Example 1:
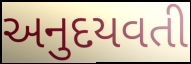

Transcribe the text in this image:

અનુદયવતી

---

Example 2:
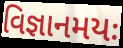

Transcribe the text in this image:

વિજ્ઞાનમયઃ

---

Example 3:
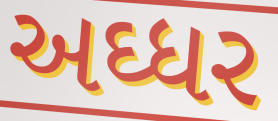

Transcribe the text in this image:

અઘ્ધર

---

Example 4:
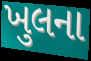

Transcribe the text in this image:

ખુલના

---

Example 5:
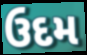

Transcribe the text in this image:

ઉદમ